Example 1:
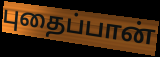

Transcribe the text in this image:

புதைப்பான்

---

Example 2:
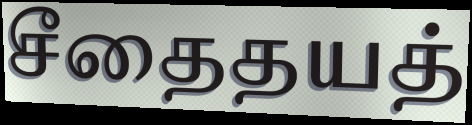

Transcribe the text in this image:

சீதைதயத்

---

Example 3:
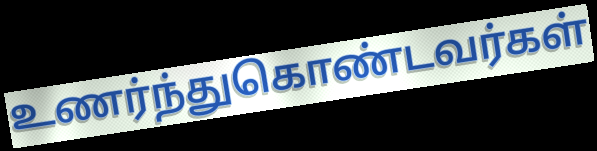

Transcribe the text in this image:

உணர்ந்துகொண்டவர்கள்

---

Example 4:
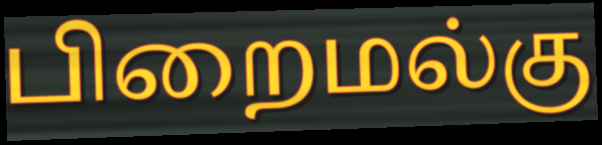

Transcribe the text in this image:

பிறைமல்கு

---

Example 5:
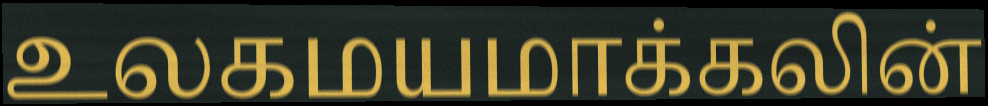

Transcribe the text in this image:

உலகமயமாக்கலின்